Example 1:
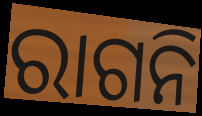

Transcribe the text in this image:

ରାଗନି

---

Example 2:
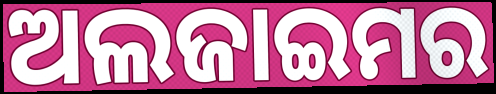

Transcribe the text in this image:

ଅଲଜାଇମର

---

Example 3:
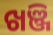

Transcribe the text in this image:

ଖଞ୍ଜି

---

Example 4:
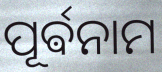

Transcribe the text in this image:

ପୂର୍ଵନାମ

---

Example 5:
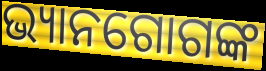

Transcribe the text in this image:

ଭ୍ୟାନଗୋଗଙ୍କ